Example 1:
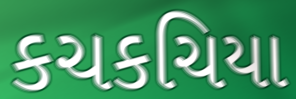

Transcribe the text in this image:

કચકચિયા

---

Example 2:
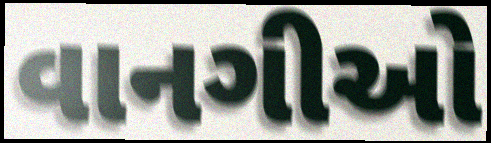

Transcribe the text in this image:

વાનગીઓ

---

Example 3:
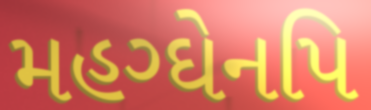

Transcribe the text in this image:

મહગ્ઘેનપિ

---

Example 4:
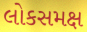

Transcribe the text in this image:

લોકસમક્ષ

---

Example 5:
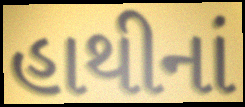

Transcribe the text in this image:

હાથીનાં